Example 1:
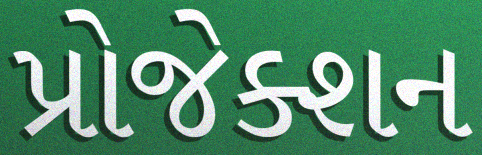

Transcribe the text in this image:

પ્રોજેક્શન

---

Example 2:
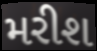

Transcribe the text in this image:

મરીશ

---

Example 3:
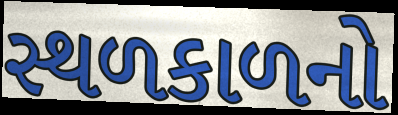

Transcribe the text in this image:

સ્થળકાળનો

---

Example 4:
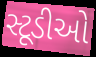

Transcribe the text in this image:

સ્ટૂડીઓ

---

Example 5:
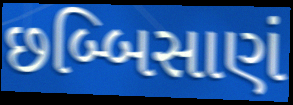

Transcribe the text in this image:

છબ્બિસાણં